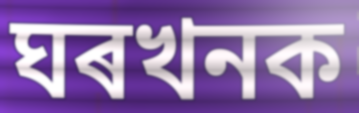
ঘৰখনক